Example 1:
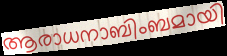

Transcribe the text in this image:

ആരാധനാബിംബമായി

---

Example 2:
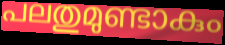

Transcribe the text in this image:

പലതുമുണ്ടാകും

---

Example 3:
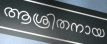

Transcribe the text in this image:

ആശ്രിതനായ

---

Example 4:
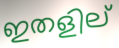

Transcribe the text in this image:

ഇതളില്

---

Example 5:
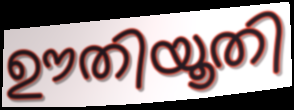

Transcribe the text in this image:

ഊതിയൂതി